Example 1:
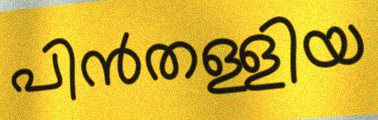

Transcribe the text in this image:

പിൻതള്ളിയ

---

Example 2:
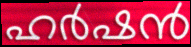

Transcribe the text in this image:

ഹർഷൻ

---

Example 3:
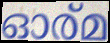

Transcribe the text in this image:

ഓര്മ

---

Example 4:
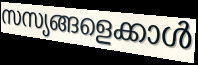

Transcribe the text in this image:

സസ്യങ്ങളെക്കാൾ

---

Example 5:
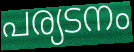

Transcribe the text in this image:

പര്യടനം